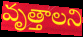
వృత్తాలని